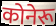
कोनेरू